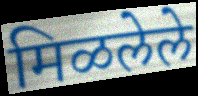
मिळलेले